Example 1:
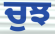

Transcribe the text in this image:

ਚੁਝ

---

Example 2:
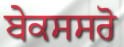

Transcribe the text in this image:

ਬੇਕਸਸਰੋ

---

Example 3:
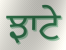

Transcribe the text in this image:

ਝਾਟੇ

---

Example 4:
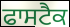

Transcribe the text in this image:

ਫਾਸਟੈਕ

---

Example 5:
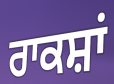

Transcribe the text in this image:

ਰਾਕਸ਼ਾਂ